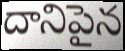
దానిపైన